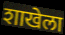
शाखेला